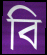
বি